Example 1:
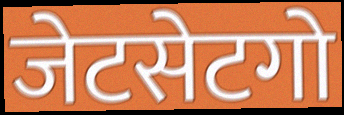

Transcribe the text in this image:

जेटसेटगो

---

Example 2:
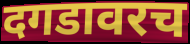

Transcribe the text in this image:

दगडावरच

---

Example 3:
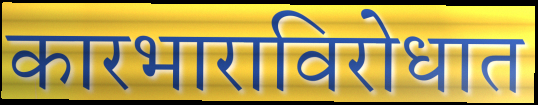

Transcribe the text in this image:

कारभाराविरोधात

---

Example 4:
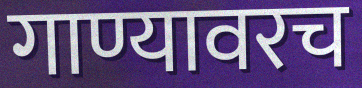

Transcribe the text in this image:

गाण्यावरच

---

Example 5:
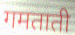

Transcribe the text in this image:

गमताती